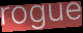
rogue